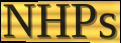
NHPs